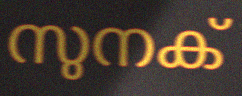
സുനക്